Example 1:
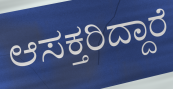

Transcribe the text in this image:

ಆಸಕ್ತರಿದ್ದಾರೆ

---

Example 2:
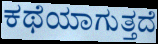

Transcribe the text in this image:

ಕಥೆಯಾಗುತ್ತದೆ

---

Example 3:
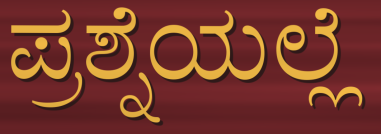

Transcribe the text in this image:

ಪ್ರಶ್ನೆಯಲ್ಲೆ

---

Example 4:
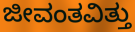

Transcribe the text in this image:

ಜೀವಂತವಿತ್ತು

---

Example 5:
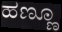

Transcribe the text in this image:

ಹಣ್ಣೂ